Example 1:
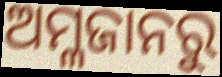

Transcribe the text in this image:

ଅମ୍ଳଜାନରୁ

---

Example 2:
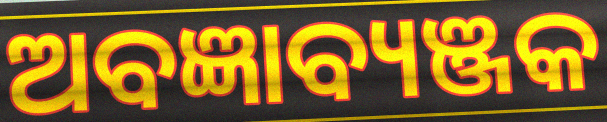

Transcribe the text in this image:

ଅବଜ୍ଞାବ୍ୟଞ୍ଜକ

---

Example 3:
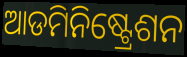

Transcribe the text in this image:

ଆଡମିନିଷ୍ଟ୍ରେଶନ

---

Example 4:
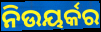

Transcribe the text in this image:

ନିଉୟର୍କର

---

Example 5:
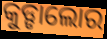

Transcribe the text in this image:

କୁଡ୍ଡାଲୋର